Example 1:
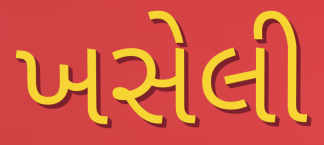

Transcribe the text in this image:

ખસેલી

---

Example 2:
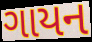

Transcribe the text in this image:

ગાયન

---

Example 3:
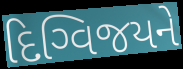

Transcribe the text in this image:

દિગ્વિજયને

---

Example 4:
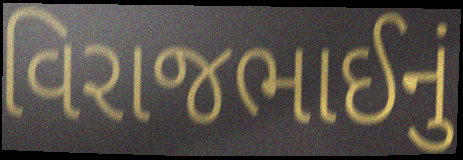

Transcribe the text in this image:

વિરાજભાઈનું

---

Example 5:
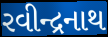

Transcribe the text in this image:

રવીન્દ્રનાથ